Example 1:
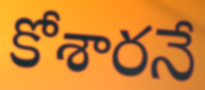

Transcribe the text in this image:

కోశారనే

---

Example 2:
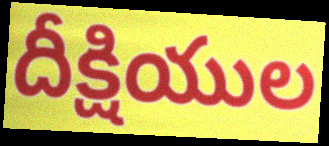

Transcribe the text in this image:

దీక్షియుల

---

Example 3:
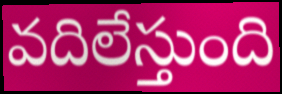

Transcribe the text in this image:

వదిలేస్తుంది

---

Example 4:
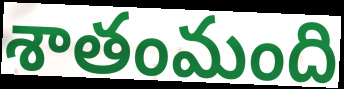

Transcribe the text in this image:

శాతంమంది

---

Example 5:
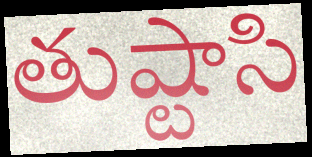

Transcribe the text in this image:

తుష్టాసి